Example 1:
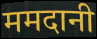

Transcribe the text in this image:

ममदानी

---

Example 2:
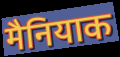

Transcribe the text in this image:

मैनियाक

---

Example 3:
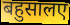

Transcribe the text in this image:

बहुसालए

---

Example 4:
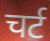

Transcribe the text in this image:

चर्ट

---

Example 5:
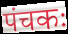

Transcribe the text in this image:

पंचकः